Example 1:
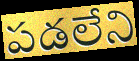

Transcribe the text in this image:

పడలేని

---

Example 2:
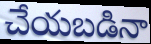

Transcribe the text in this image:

చేయబడినా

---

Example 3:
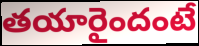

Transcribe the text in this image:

తయారైందంటే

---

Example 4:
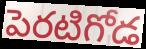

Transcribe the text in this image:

పెరటిగోడ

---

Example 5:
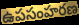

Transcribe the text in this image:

ఉపసంహరణ